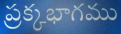
ప్రక్కభాగము